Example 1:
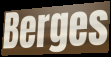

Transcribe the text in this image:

Berges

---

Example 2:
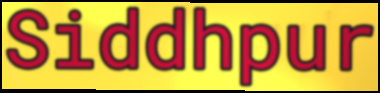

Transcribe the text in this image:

Siddhpur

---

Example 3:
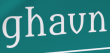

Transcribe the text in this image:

ghaun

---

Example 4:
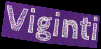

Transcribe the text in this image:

Viginti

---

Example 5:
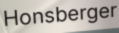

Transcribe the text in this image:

Honsberger